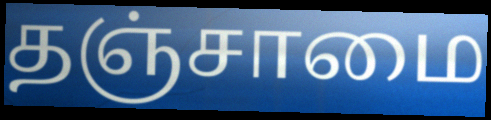
தஞ்சாமை